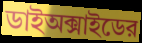
ডাইঅক্সাইডের